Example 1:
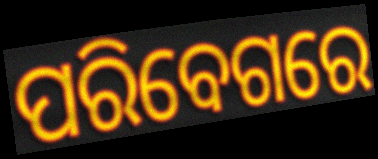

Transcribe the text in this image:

ପରିବେଗରେ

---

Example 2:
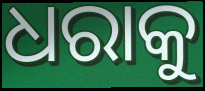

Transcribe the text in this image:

ଧରାକୁ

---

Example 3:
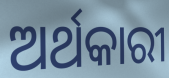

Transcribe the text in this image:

ଅର୍ଥକାରୀ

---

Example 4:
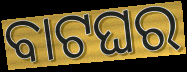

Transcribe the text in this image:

ବାଟଘର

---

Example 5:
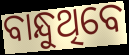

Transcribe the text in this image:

ବାନ୍ଧୁଥିବେ